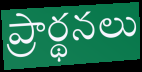
ప్రార్థనలు